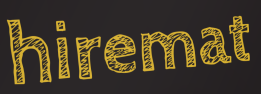
hiremat